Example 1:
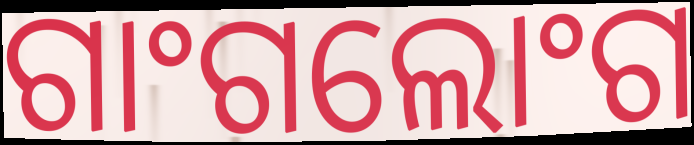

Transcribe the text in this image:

ଗାଂଗଲୋଂଗ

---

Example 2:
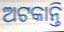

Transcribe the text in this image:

ଅଟକାନ୍ତି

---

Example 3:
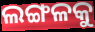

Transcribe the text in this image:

ଲଙ୍ଗଳକୁ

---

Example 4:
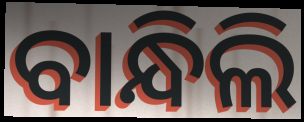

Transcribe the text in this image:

ବାନ୍ଧିଲି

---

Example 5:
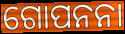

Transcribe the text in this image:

ଗୋପନନା